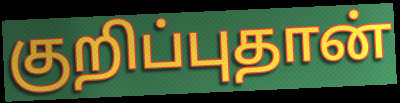
குறிப்புதான்